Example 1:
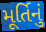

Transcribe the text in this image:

મૂર્તિનું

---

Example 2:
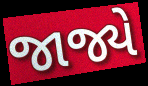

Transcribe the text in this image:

જાજ્યે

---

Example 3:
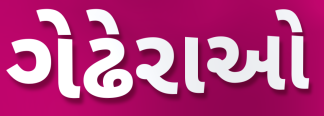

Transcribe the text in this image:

ગેઢેરાઓ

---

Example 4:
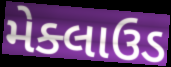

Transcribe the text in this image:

મેક્લાઉડ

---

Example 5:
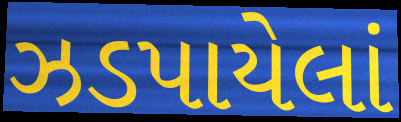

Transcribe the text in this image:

ઝડપાયેલાં